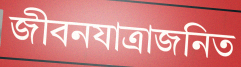
জীবনযাত্রাজনিত